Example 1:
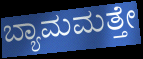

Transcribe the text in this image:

ಬ್ಯಾಮಮತ್ತೇ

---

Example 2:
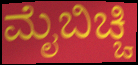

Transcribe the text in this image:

ಮೈಬಿಚ್ಚಿ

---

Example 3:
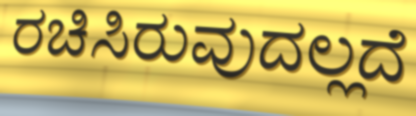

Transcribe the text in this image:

ರಚಿಸಿರುವುದಲ್ಲದೆ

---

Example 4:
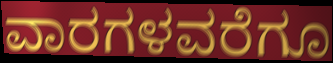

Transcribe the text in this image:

ವಾರಗಳವರೆಗೂ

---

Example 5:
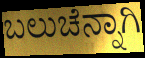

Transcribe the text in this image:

ಬಲುಚೆನ್ನಾಗಿ